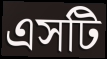
এসটি